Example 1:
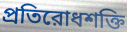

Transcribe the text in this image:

প্রতিরোধশক্তি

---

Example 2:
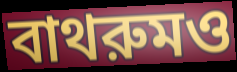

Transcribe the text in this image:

বাথরুমও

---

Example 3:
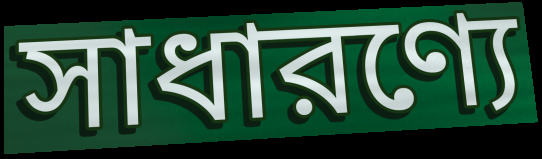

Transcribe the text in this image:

সাধারণ্যে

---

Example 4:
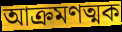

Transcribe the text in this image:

আক্রমণত্মক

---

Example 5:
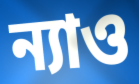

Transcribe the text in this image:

ন্যাও